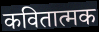
कवितात्मक